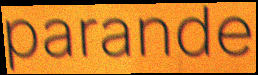
parande